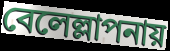
বেলেল্লাপনায়